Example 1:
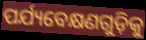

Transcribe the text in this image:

ପର୍ଯ୍ୟବେକ୍ଷଣଗୁଡ଼ିକୁ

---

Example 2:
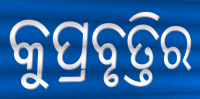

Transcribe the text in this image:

କୁପ୍ରବୃତ୍ତିର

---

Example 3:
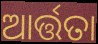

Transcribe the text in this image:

ଆର୍ତ୍ତତା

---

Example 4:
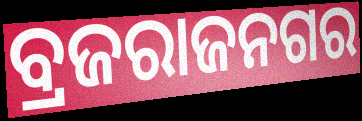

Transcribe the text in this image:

ବ୍ରଜରାଜନଗର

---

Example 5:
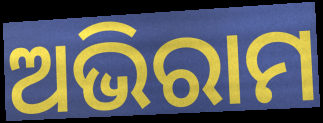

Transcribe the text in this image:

ଅଭିରାମ